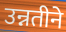
उन्नतीने